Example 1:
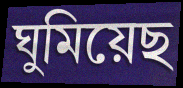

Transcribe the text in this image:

ঘুমিয়েছ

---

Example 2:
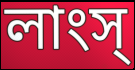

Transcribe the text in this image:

লাংস্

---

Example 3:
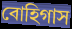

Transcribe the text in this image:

বোহিগাস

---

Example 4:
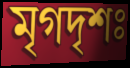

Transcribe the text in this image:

মৃগদৃশঃ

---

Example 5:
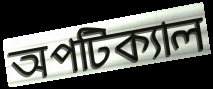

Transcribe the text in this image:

অপটিক্যাল